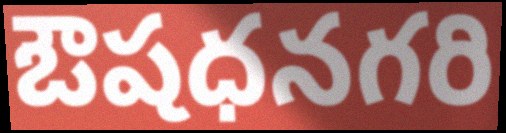
ఔషధనగరి